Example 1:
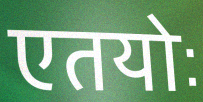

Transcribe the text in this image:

एतयोः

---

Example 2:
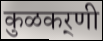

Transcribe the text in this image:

कुळकर्णी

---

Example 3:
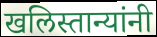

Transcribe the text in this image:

खलिस्तान्यांनी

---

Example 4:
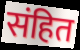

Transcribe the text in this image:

संहित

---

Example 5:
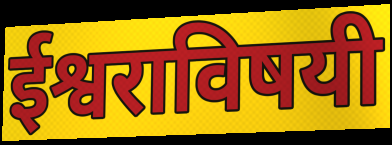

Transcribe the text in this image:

ईश्वराविषयी